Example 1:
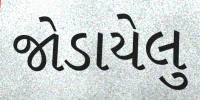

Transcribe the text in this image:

જોડાયેલુ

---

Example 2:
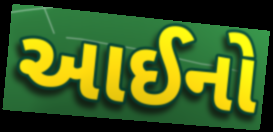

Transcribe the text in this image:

આઈનો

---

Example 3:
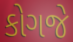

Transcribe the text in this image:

કોગજે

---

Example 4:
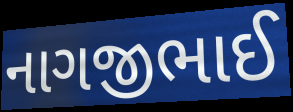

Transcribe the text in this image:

નાગજીભાઈ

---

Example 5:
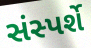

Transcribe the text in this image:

સંસ્પર્શે